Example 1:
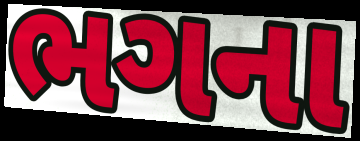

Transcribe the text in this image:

ભગના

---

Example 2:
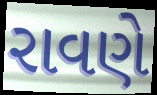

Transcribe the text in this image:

રાવણે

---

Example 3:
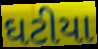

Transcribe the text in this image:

ઘટીયા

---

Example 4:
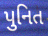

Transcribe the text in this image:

પુનિત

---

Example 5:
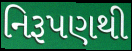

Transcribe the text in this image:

નિરૂપણથી